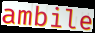
ambile